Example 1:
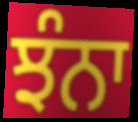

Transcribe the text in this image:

ਝੰਨਾ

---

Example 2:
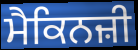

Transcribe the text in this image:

ਮੈਕਿਨਜ਼ੀ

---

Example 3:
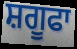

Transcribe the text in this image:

ਸ਼ਗੂਫਾ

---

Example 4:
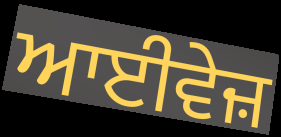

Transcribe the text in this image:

ਆਈਵੇਜ਼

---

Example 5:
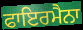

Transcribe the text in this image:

ਫਾਇਰਮੈਨਾ